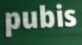
pubis